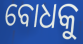
ବୋଧକୁ